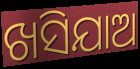
ଖସିଯାଅ